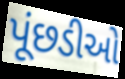
પૂંછડીઓ